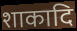
शाकादि